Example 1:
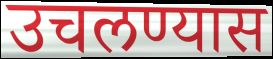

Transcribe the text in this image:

उचलण्यास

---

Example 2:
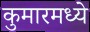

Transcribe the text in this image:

कुमारमध्ये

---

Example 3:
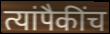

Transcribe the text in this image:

त्यांपैकींच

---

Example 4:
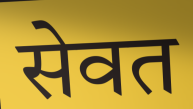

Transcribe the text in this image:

सेवत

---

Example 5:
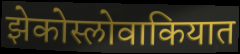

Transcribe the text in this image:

झेकोस्लोवाकियात